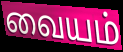
வையம்